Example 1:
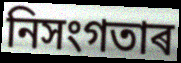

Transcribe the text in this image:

নিসংগতাৰ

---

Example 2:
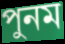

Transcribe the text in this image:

পুনম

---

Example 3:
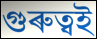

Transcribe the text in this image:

গুৰুত্বই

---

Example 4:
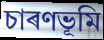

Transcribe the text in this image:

চাৰণভূমি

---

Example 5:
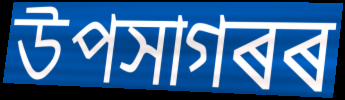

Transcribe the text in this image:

উপসাগৰৰ